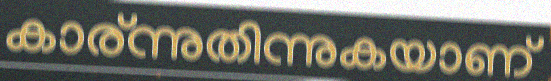
കാര്ന്നുതിന്നുകയാണ്